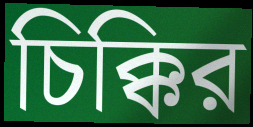
চিক্কির